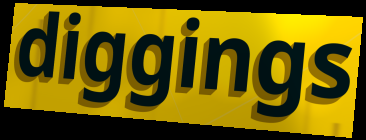
diggings